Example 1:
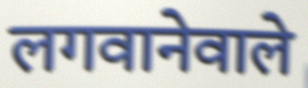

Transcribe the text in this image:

लगवानेवाले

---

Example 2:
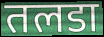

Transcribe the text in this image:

तलडा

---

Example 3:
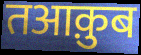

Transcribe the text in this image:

तआक़ुब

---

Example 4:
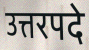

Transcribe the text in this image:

उत्तरपदे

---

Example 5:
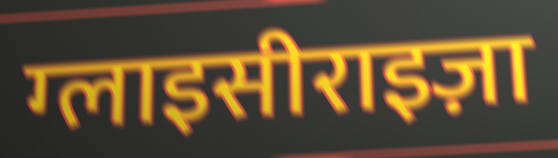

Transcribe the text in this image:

ग्लाइसीराइज़ा